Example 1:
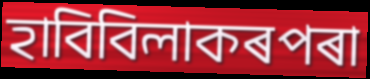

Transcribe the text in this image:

হাবিবিলাকৰপৰা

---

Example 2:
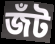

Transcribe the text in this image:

জঁট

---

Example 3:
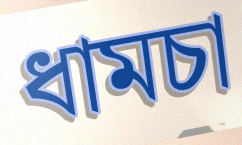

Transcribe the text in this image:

ধামচা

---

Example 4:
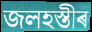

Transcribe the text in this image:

জলহস্তীৰ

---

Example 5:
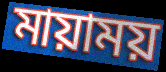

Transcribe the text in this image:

মায়াময়